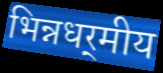
भिन्नधर्मीय